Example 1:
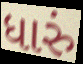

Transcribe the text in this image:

ધારું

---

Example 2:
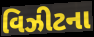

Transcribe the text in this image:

વિઝીટના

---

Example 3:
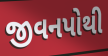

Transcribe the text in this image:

જીવનપોથી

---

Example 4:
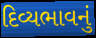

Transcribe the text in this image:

દિવ્યભાવનું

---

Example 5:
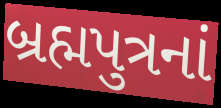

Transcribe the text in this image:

બ્રહ્મપુત્રનાં